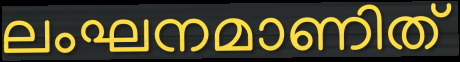
ലംഘനമാണിത്